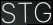
STG